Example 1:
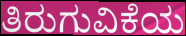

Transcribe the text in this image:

ತಿರುಗುವಿಕೆಯ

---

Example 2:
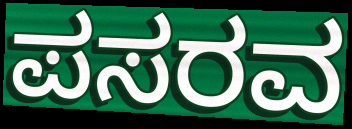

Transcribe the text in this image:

ಪಸರವ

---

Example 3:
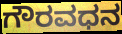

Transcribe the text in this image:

ಗೌರವಧನ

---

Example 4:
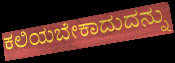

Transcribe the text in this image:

ಕಲಿಯಬೇಕಾದುದನ್ನು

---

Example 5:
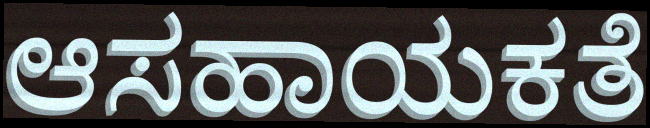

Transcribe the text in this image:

ಆಸಹಾಯಕತೆ